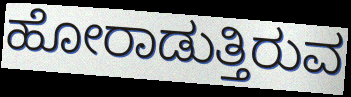
ಹೋರಾಡುತ್ತಿರುವ